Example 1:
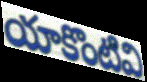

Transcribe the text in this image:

యాకొంటివి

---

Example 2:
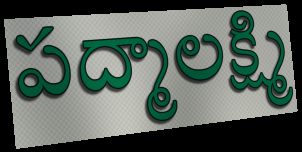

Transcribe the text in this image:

పద్మాలక్ష్మి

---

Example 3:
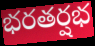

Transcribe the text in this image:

భరతర్షభ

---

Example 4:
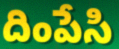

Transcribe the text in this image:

దింపేసి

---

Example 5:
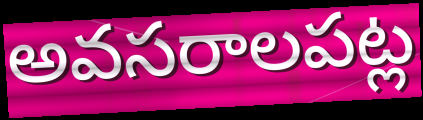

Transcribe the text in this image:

అవసరాలపట్ల